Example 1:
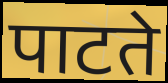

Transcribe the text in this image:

पाटते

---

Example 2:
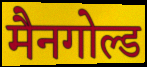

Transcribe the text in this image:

मैनगोल्ड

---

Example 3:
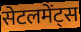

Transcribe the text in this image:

सेटलमेंट्स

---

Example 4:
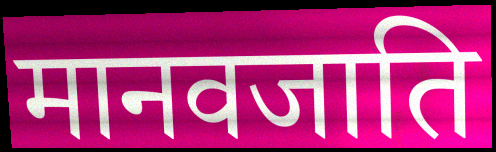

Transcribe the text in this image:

मानवजाति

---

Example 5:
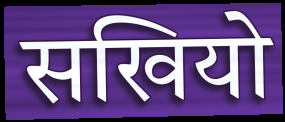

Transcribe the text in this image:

सखियो